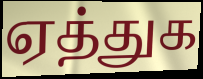
ஏத்துக